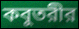
কবুতরীর